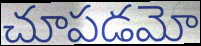
చూపడమో